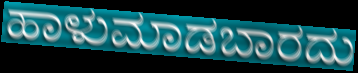
ಹಾಳುಮಾಡಬಾರದು